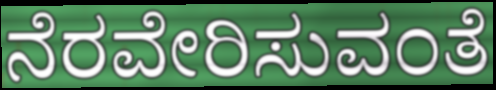
ನೆರವೇರಿಸುವಂತೆ